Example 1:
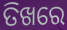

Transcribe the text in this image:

ତିଖରେ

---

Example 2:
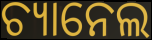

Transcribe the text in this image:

ଚ୍ୟାନେଲ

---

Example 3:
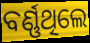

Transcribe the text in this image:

ବର୍ଣ୍ଣଥିଲେ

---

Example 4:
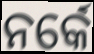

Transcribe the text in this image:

ନର୍କେ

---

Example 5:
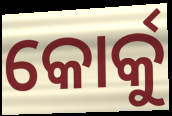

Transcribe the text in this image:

କୋର୍କୁ